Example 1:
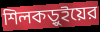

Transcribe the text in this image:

শিলকড়ুইয়ের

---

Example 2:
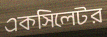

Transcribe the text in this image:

একসিলেটর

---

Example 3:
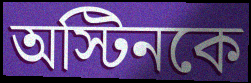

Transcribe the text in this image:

অস্টিনকে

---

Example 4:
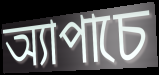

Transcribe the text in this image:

অ্যাপাচে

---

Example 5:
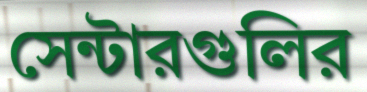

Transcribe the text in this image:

সেন্টারগুলির